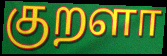
குறளா